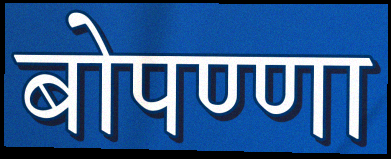
बोपण्णा